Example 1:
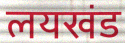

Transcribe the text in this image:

लयखंड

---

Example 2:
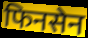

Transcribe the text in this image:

फिनसेन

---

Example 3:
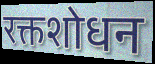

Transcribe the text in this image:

रक्तशोधन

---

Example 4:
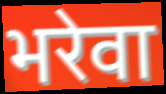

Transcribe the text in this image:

भरेवा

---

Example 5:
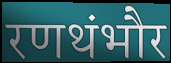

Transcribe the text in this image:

रणथंभौर